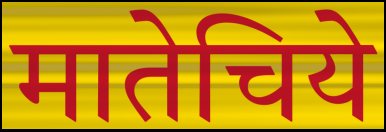
मातेचिये